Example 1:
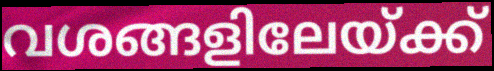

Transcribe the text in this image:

വശങ്ങളിലേയ്ക്ക്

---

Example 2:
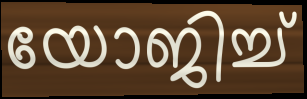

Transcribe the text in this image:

യോജിച്ച്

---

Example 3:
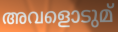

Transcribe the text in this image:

അവളൊടുമ്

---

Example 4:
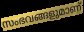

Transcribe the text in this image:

സംഭവങ്ങളുമാണ്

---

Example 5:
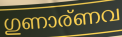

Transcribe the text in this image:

ഗുണാര്ണവ